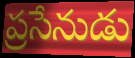
ప్రసేనుడు